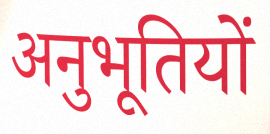
अनुभूतियों